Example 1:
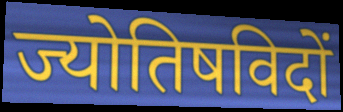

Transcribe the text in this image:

ज्योतिषविदों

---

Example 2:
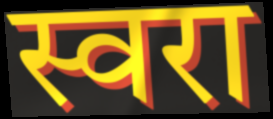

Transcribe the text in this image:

स्‍वरा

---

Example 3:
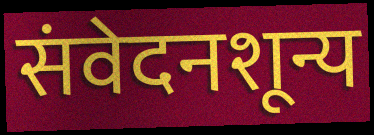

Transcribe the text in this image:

संवेदनशून्य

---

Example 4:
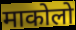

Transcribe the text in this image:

माकोलो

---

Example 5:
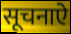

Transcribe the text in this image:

सूचनाऐ